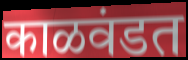
काळवंडत